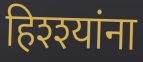
हिश्श्यांना